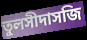
তুলসীদাসজি